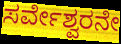
ಸರ್ವೇಶ್ವರನೇ